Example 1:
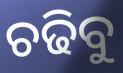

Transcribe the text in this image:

ଚଢିବୁ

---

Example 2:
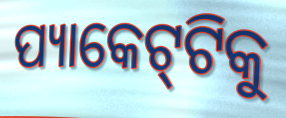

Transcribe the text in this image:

ପ୍ୟାକେଟ୍‌ଟିକୁ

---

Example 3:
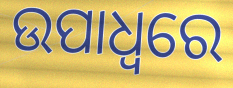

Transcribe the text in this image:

ଉପାଧ୍ଵରେ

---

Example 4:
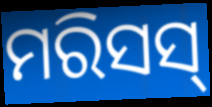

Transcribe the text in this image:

ମରିସସ୍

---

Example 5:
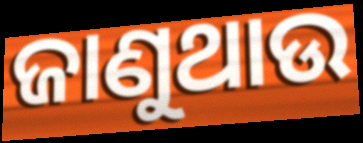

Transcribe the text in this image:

ଜାଣୁଥାଉ